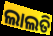
ଲାଲତି